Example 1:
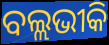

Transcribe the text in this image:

ବଲ୍ଲଭୀକି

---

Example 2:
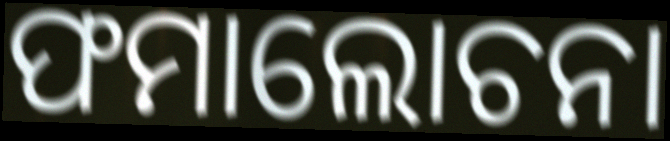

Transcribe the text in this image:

ଫମାଲୋଚନା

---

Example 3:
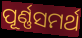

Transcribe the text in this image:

ପୂର୍ଣ୍ଣସମର୍ଥ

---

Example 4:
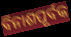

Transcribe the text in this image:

ବିନାଶପୂର୍ବକ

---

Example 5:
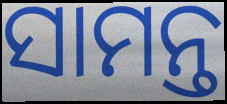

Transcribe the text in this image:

ସାମନ୍ତ